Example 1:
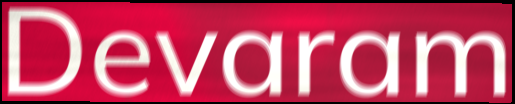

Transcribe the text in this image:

Devaram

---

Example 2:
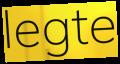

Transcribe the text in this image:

legte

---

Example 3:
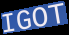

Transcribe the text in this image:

IGOT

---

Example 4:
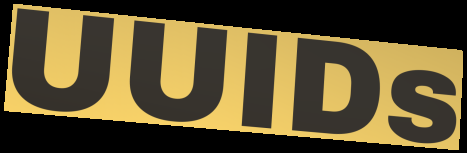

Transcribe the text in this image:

UUIDs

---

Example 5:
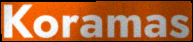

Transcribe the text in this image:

Koramas